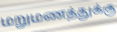
மறுமணத்துக்கு